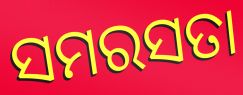
ସମରସତା